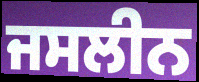
ਜਸਲੀਨ